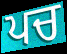
ਪਚ